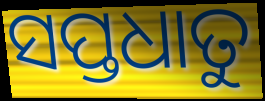
ସପ୍ତଧାତୁ